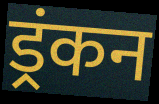
ड्रंकन